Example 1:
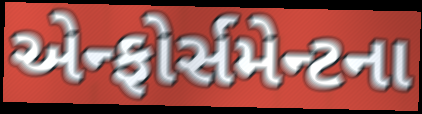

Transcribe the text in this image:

એન્ફોર્સમેન્ટના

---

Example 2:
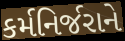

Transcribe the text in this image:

કર્મનિર્જરાને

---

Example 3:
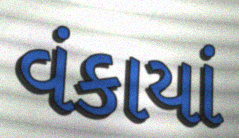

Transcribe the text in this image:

વંકાયાં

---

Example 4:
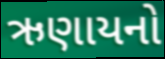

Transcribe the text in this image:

ઋણાયનો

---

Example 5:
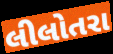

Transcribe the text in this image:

લીલોતરા